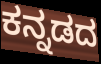
ಕನ್ನಡದ